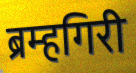
ब्रम्हगिरी